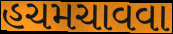
હચમચાવવા